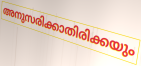
അനുസരിക്കാതിരിക്കയും